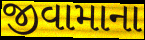
જીવામાના